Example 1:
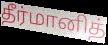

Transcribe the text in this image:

தீர்மானித்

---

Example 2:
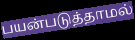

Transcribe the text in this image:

பயன்படுத்தாமல்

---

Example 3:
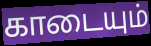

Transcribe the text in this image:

காடையும்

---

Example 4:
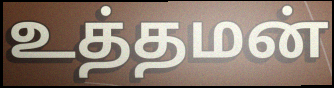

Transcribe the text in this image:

உத்தமன்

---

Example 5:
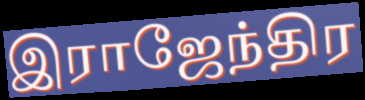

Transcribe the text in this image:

இராஜேந்திர